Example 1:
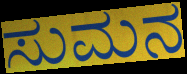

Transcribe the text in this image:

ಸುಮನ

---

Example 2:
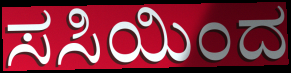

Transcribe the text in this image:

ಸಸಿಯಿಂದ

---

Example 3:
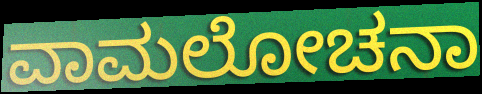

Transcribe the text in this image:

ವಾಮಲೋಚನಾ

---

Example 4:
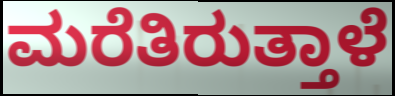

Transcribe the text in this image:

ಮರೆತಿರುತ್ತಾಳೆ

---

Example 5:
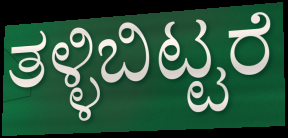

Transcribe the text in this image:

ತಳ್ಳಿಬಿಟ್ಟರೆ